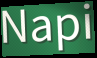
Napi